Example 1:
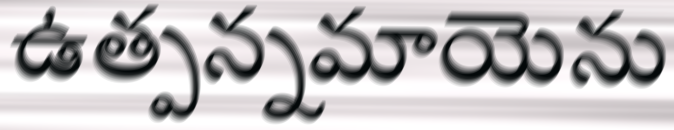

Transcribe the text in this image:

ఉత్పన్నమాయెను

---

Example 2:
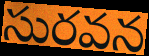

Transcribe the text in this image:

సురవన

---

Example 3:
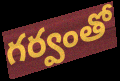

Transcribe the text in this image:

గర్వంతో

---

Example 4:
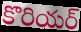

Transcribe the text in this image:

కొరియర్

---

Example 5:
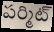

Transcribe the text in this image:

పర్మిట్